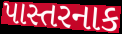
પાસ્તરનાક